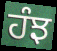
ਹੰਝ